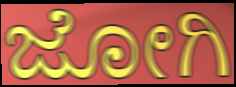
ಜೋಗಿ